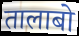
तालाबो